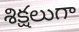
శిక్షలుగా